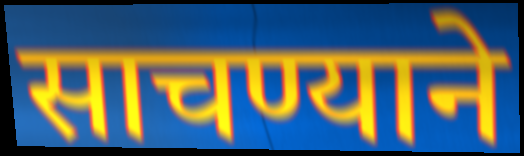
साचण्याने